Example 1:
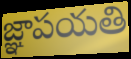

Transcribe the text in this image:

జ్ఞాపయతి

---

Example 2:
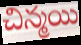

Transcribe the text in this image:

చిన్మయి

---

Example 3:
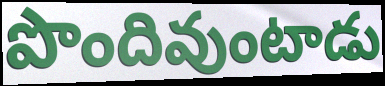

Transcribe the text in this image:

పొందివుంటాడు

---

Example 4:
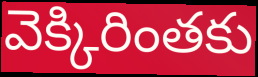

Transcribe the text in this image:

వెక్కిరింతకు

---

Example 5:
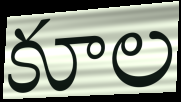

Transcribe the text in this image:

కూల